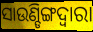
ସାଉଣ୍ଡିଙ୍ଗଦ୍ୱାରା